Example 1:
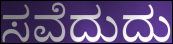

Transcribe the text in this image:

ಸವೆದುದು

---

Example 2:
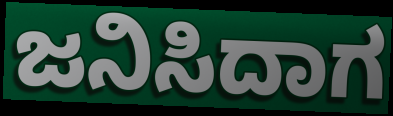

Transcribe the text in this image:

ಜನಿಸಿದಾಗ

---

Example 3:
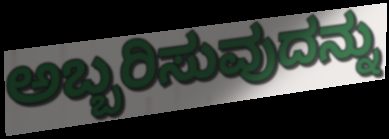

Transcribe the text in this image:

ಅಬ್ಬರಿಸುವುದನ್ನು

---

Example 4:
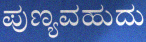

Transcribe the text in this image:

ಪುಣ್ಯವಹುದು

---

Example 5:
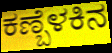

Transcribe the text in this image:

ಕಣ್ಬೆಳಕಿನ